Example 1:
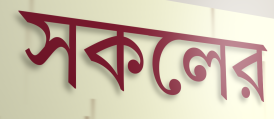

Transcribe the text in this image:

সকলের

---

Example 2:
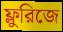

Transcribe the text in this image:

ফ্লুরিজে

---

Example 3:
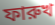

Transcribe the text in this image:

ফারুখ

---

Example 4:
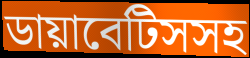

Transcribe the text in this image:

ডায়াবেটিসসহ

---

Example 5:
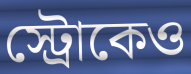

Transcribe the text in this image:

স্ট্রোকেও